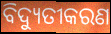
ବିଦ୍ୟୁତୀକରଣ